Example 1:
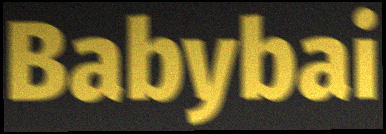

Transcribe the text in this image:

Babybai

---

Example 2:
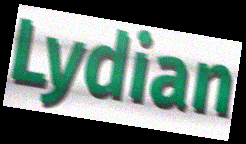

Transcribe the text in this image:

Lydian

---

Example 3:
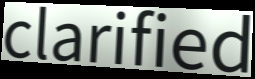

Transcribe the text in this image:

clarified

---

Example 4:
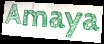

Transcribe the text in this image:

Amaya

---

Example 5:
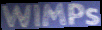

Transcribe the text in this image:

WIMPs